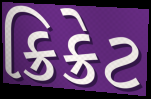
ક્રિક્રેટ